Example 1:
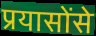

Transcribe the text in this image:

प्रयासोंसे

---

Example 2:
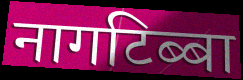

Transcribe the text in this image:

नागटिब्बा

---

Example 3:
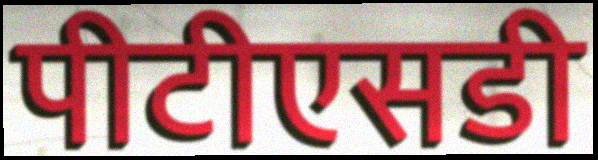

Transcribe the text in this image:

पीटीएसडी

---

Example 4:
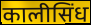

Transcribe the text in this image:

कालीसिंध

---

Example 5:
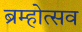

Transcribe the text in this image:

ब्रम्होत्सव